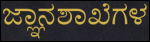
ಜ್ಞಾನಶಾಖೆಗಳ